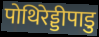
पोथिरेड्डीपाडु